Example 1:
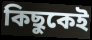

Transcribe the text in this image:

কিছুকেই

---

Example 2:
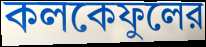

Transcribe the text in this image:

কলকেফুলের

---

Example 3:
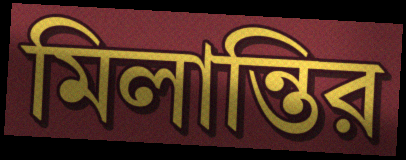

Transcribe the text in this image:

মিলান্তির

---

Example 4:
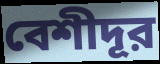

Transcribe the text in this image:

বেশীদূর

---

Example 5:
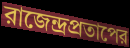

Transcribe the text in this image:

রাজেন্দ্রপ্রতাপের